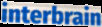
interbrain